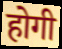
होगी